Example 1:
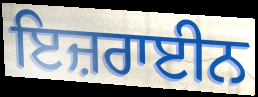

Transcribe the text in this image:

ਇਜ਼ਰਾਈਨ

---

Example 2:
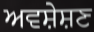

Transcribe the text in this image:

ਅਵਸ਼ੇਸ਼ਣ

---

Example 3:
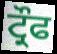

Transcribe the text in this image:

ਟ੍ਰੌਫ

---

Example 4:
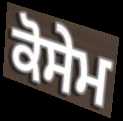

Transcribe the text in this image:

ਕੋਸੇਮ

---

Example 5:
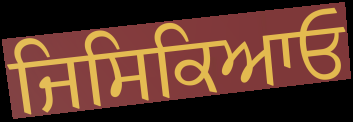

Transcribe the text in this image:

ਜਿਸਿਕਿਆਓ